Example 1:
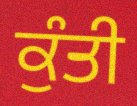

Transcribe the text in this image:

ਕੁੰਤੀ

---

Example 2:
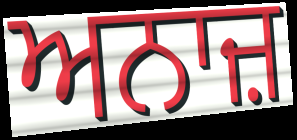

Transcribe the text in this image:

ਅਨਾਜ਼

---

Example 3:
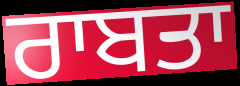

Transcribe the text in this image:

ਰਾਬਤਾ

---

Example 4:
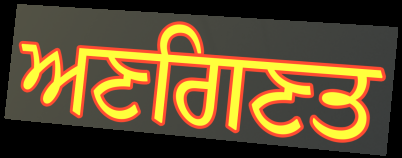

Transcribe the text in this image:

ਅਣਗਿਣਤ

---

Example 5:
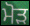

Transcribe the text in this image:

ਮੋੜ